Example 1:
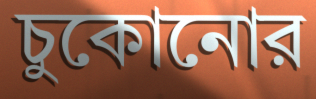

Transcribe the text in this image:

চুকোনোর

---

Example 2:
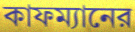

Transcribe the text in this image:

কাফম্যানের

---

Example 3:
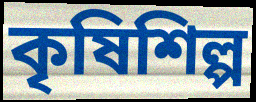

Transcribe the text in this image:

কৃষিশিল্প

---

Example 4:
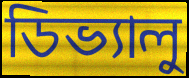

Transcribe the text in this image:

ডিভ্যালু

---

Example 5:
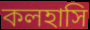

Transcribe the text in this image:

কলহাসি